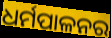
ଧର୍ମପାଳନର